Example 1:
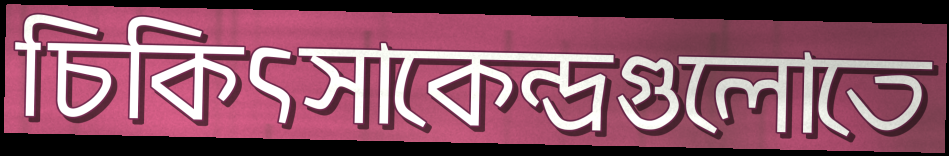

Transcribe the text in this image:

চিকিৎসাকেন্দ্রগুলোতে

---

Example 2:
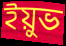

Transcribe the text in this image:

ইয়ুভ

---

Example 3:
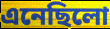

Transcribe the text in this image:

এনেছিলো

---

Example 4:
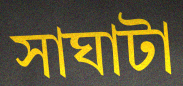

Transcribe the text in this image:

সাঘাটা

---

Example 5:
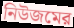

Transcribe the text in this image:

নিউজমের